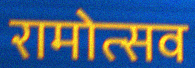
रामोत्सव